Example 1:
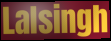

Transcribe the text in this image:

Lalsingh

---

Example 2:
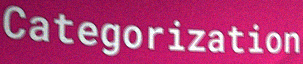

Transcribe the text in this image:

Categorization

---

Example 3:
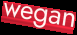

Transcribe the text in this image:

wegan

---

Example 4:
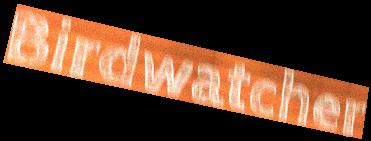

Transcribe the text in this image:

Birdwatcher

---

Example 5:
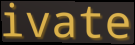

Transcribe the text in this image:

ivate